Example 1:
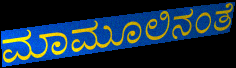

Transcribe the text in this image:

ಮಾಮೂಲಿನಂತೆ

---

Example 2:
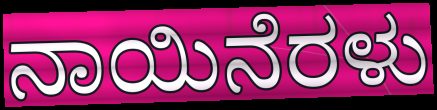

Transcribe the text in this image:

ನಾಯಿನೆರಳು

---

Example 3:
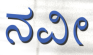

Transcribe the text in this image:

ನವೀ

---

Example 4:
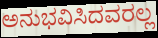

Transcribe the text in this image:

ಅನುಭವಿಸಿದವರಲ್ಲ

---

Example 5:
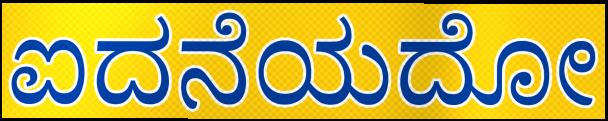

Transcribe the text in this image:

ಐದನೆಯದೋ